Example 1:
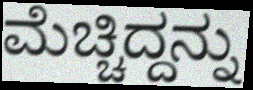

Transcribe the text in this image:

ಮೆಚ್ಚಿದ್ದನ್ನು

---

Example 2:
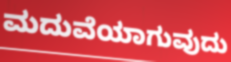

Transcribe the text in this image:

ಮದುವೆಯಾಗುವುದು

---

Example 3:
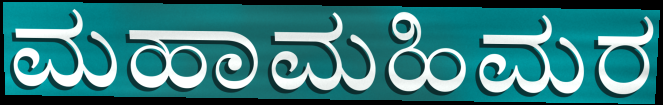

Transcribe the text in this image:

ಮಹಾಮಹಿಮರ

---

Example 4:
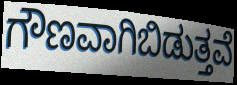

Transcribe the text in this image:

ಗೌಣವಾಗಿಬಿಡುತ್ತವೆ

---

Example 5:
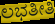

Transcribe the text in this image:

ಲಭತೀತಿ